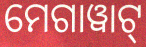
ମେଗାୱାଟ୍